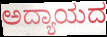
ಅದ್ಯಾಯದ